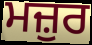
ਮਜ਼ੁਰ